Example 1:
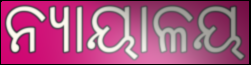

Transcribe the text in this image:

ନ୍ଯାୟାଳୟ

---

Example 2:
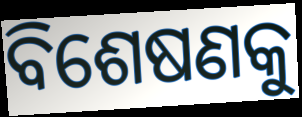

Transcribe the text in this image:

ବିଶେଷଣକୁ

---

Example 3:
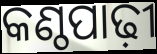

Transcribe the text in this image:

କଣ୍ଠପାଢ଼ୀ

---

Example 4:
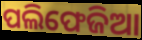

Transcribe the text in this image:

ପଲିଫେଜିଆ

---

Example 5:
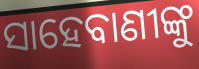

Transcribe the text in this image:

ସାହେବାଣୀଙ୍କୁ